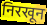
निरखून